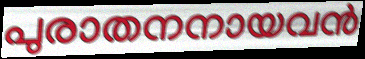
പുരാതനനായവൻ